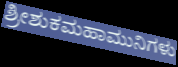
ಶ್ರೀಶುಕಮಹಾಮುನಿಗಳು